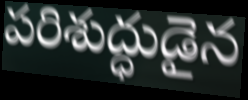
పరిశుద్ధుడైన